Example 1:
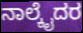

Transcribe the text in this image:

ನಾಲ್ಕೈದರ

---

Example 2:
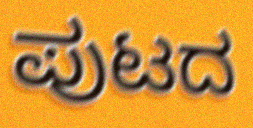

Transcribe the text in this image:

ಪುಟದ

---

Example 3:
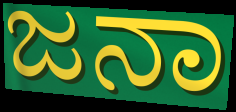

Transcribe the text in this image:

ಜನಾ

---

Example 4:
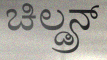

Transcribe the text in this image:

ಚಿಲ್ಡ್ರನ್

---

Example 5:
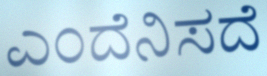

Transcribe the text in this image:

ಎಂದೆನಿಸದೆ